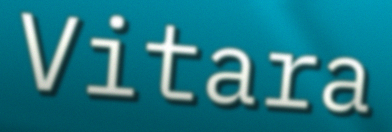
Vitara